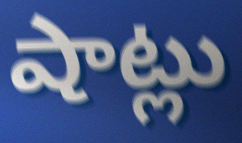
షాట్లు